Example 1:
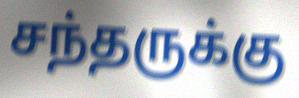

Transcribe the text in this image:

சந்தருக்கு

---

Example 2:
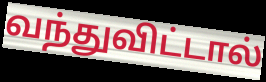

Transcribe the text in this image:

வந்துவிட்டால்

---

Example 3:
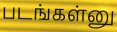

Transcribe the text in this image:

படங்கள்னு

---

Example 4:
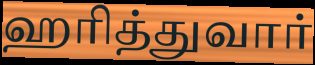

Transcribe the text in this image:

ஹரித்துவார்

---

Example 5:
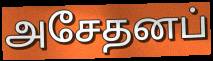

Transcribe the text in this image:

அசேதனப்